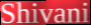
Shivani